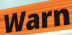
Warn